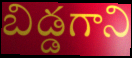
బిడ్డగాని